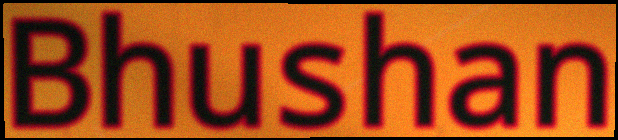
Bhushan